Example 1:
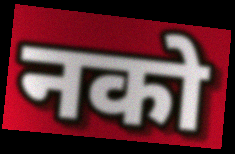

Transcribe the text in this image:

नको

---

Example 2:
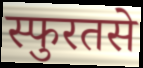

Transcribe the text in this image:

स्फुरतसे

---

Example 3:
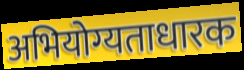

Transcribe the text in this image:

अभियोग्यताधारक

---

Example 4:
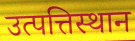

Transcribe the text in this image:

उत्पत्तिस्थान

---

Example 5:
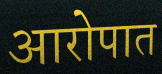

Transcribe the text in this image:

आरोपात